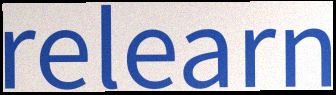
relearn